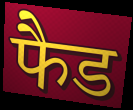
फैड